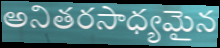
అనితరసాధ్యమైన